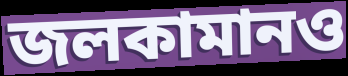
জলকামানও